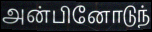
அன்பினோடுந்